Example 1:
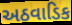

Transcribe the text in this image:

અઠવાડિક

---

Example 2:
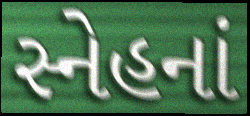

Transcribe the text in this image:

સ્નેહનાં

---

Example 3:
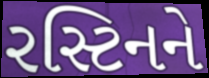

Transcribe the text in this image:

રસ્ટિનને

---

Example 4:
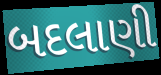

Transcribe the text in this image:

બદલાણી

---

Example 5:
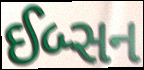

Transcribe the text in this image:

ઈબ્સન